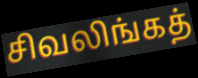
சிவலிங்கத்